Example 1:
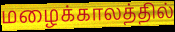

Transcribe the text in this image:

மழைக்காலத்தில்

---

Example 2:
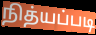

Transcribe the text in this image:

நித்யப்படி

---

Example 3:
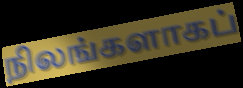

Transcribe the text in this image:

நிலங்களாகப்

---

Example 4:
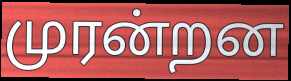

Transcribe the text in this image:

முரன்றன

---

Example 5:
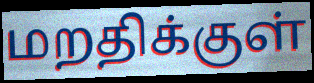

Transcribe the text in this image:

மறதிக்குள்